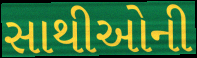
સાથીઓની